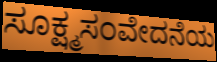
ಸೂಕ್ಷ್ಮಸಂವೇದನೆಯ